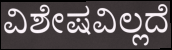
ವಿಶೇಷವಿಲ್ಲದೆ